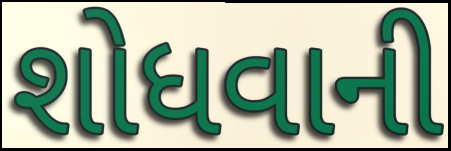
શોધવાની